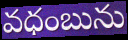
వధంబును